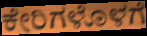
ಕೇರಿಗಳೊಳಗೆ